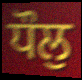
ਧੌਲੁ